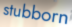
stubborn